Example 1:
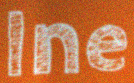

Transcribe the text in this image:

Ine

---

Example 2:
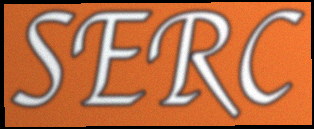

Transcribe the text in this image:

SERC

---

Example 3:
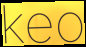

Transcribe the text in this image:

keo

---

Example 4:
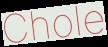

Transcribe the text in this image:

Chole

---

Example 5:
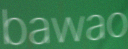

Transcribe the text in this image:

bawao